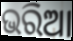
ଭରିଆ